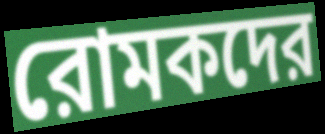
রোমকদের